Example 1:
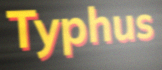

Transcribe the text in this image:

Typhus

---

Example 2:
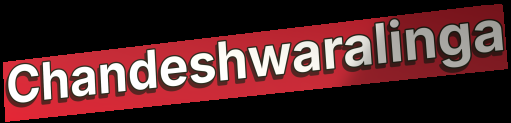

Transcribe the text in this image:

Chandeshwaralinga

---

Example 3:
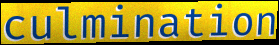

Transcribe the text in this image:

culmination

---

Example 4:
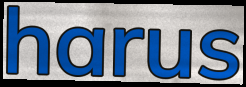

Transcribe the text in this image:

harus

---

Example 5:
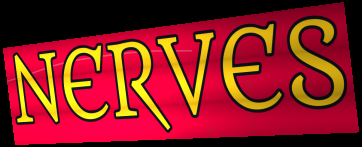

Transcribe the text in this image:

NERVES